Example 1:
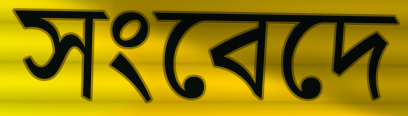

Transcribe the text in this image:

সংবেদে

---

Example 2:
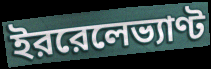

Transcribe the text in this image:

ইররেলেভ্যাণ্ট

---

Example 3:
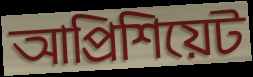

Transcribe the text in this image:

আপ্রিশিয়েট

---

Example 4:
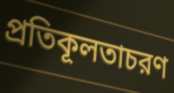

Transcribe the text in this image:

প্রতিকূলতাচরণ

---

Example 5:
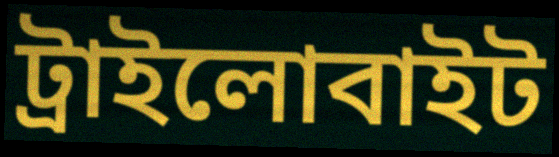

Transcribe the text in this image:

ট্রাইলোবাইট